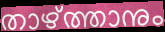
താഴ്ത്താനും